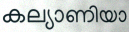
കല്യാണിയാ